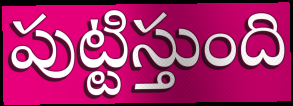
పుట్టిస్తుంది